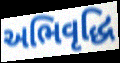
અભિવૃદ્ધિ